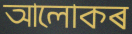
আলোকৰ